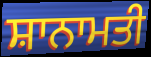
ਸ਼ਾਨਾਮਤੀ